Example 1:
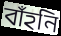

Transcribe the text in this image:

বাঁহনি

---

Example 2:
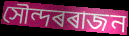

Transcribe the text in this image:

সৌন্দৰৰাজন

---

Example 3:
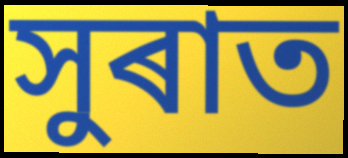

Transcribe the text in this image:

সুৰাত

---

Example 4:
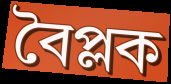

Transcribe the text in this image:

বৈপ্লক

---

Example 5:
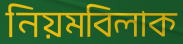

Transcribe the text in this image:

নিয়মবিলাক